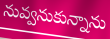
నువ్వనుకున్నాను